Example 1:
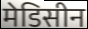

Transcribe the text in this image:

मेडिसीन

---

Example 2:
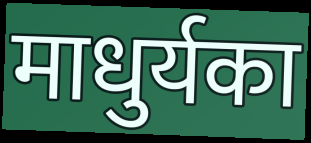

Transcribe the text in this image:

माधुर्यका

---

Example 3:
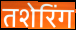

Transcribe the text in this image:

तशेरिंग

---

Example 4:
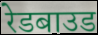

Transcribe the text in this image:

रेडबाउड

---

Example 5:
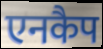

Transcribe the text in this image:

एनकैप